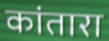
कांतारा